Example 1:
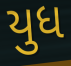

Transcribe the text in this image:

યુધ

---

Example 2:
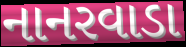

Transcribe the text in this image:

નાનરવાડા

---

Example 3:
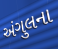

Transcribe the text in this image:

અંગુલના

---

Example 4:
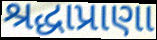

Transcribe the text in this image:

શ્રદ્ધાપ્રાણા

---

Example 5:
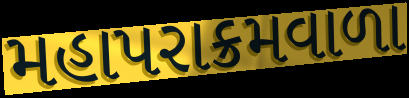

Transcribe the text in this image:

મહાપરાક્રમવાળા